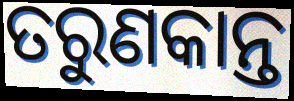
ତରୁଣକାନ୍ତ